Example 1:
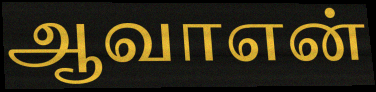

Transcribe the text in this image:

ஆவாஎன்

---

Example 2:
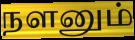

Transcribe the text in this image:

நளனும்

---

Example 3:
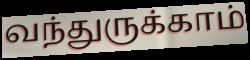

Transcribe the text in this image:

வந்துருக்காம்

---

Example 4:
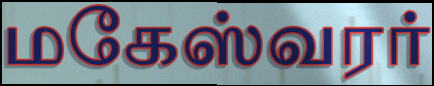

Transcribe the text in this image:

மகேஸ்வரர்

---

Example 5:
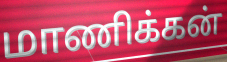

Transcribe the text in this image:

மாணிக்கன்